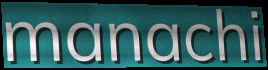
manachi